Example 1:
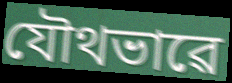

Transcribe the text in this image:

যৌথভাৱে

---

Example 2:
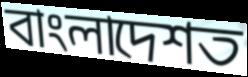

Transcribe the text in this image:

বাংলাদেশত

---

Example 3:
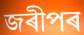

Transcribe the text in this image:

জৰীপৰ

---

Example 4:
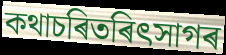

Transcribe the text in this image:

কথাচৰিতৰিৎসাগৰ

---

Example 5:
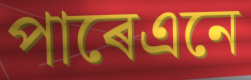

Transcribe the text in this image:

পাৰেএনে